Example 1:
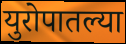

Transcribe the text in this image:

युरोपातल्या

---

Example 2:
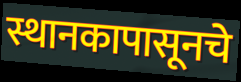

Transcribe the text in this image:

स्थानकापासूनचे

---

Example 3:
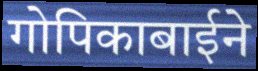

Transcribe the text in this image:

गोपिकाबाईने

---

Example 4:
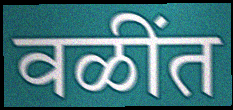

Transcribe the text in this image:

वळींत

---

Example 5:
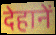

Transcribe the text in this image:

देहानें